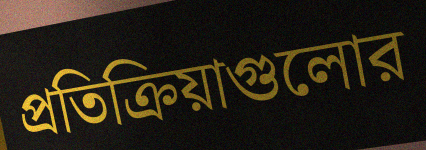
প্রতিক্রিয়াগুলোর